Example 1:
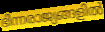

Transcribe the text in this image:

ഭിന്നരാജ്യങ്ങളിൽ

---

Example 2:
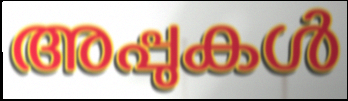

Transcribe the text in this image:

അപ്പുകൾ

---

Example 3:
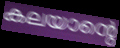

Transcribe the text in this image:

കലയാന്റെ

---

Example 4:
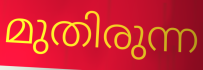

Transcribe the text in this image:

മുതിരുന്ന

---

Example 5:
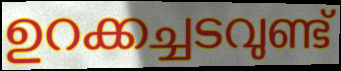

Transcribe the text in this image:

ഉറക്കച്ചടവുണ്ട്